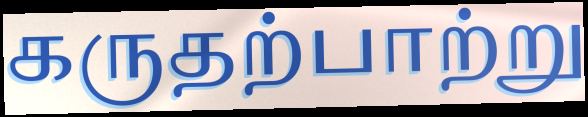
கருதற்பாற்று